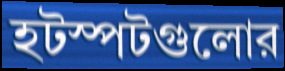
হটস্পটগুলোর